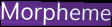
Morpheme